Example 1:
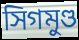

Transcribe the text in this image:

সিগমুণ্ড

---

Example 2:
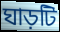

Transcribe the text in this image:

ঘাড়টি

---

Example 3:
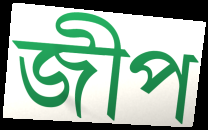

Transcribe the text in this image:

জীপ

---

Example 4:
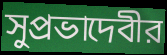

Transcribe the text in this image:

সুপ্রভাদেবীর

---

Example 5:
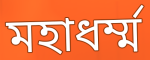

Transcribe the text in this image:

মহাধর্ম্ম